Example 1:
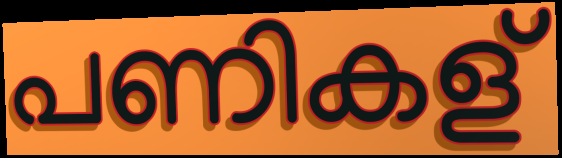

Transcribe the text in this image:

പണികള്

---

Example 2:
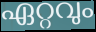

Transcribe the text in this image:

ഏറ്റവും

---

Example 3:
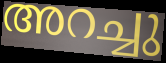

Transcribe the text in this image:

അറച്ചു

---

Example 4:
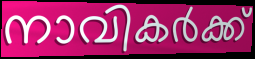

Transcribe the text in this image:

നാവികർക്ക്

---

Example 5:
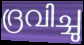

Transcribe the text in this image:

ദ്രവിച്ചു